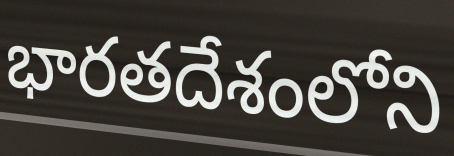
భారతదేశంలోని